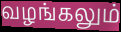
வழங்கலும்